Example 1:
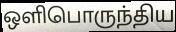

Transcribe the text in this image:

ஒளிபொருந்திய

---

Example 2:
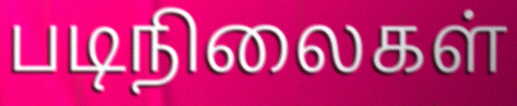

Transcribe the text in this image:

படிநிலைகள்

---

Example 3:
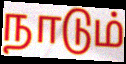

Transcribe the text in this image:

நாடும்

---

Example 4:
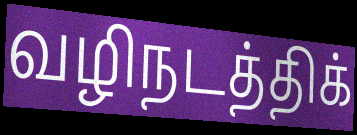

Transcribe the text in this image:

வழிநடத்திக்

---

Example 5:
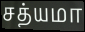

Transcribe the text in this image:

சத்யமா